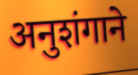
अनुशंगाने